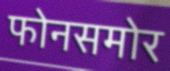
फोनसमोर